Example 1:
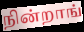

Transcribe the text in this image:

நின்றாங்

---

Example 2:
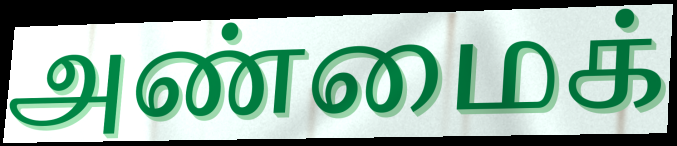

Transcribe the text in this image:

அண்மைக்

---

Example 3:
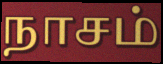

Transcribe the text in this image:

நாசம்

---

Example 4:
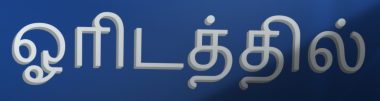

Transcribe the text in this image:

ஓரிடத்தில்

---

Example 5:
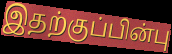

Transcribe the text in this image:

இதற்குப்பின்பு